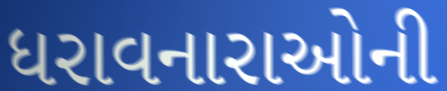
ધરાવનારાઓની